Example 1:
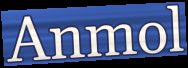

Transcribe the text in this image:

Anmol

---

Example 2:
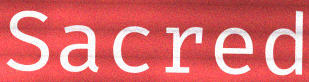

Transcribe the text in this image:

Sacred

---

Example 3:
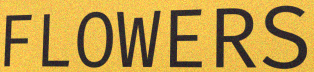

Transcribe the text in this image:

FLOWERS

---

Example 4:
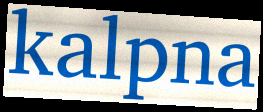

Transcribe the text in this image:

kalpna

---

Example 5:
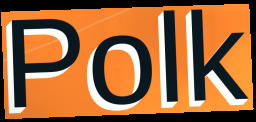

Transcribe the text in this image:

Polk